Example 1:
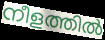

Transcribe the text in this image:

നീളത്തിൽ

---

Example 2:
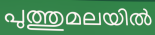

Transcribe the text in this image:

പുത്തുമലയിൽ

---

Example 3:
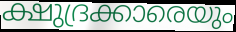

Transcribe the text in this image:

ക്ഷുദ്രക്കാരെയും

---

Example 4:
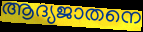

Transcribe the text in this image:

ആദ്യജാതനെ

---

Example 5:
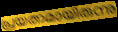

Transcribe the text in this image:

പ്രയത്നമായിരുന്നു